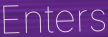
Enters